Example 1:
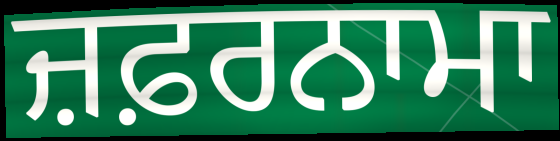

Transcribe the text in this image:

ਜ਼ਫ਼ਰਨਾਮਾ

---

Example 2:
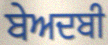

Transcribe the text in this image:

ਬੇਅਦਬੀ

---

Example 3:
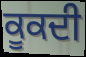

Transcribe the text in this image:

ਕੂਕਦੀ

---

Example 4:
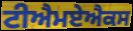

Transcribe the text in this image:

ਟੀਐਮਏਐਕਸ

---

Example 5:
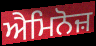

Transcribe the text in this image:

ਐਮਿਨੋਜ਼